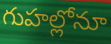
గుహల్లోనూ